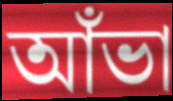
আঁভা